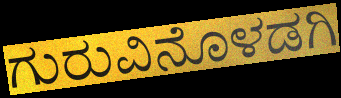
ಗುರುವಿನೊಳಡಗಿ